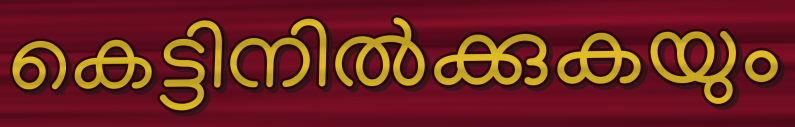
കെട്ടിനിൽക്കുകയും